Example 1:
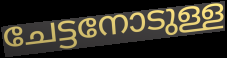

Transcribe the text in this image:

ചേട്ടനോടുള്ള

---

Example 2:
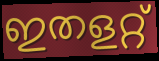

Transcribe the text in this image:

ഇതളറ്റ്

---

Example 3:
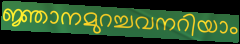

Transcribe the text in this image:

ജ്ഞാനമുറച്ചവനറിയാം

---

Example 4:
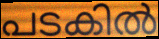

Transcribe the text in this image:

പടകിൽ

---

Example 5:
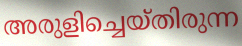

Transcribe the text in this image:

അരുളിച്ചെയ്തിരുന്ന